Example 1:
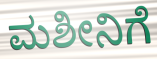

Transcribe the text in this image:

ಮಶೀನಿಗೆ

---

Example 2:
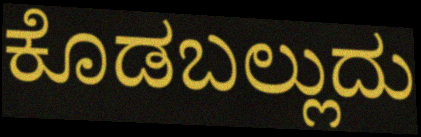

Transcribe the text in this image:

ಕೊಡಬಲ್ಲುದು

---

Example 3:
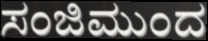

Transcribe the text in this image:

ಸಂಜಿಮುಂದ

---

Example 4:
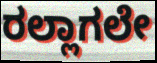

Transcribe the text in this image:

ರಲ್ಲಾಗಲೇ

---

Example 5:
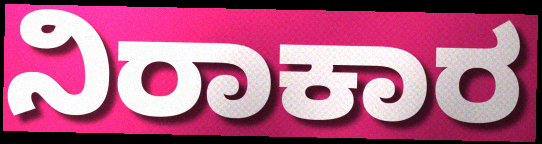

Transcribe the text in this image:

ನಿರಾಕಾರ